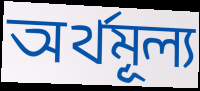
অর্থমূল্য